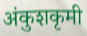
अंकुशकृमी